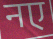
नए